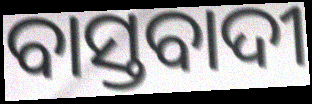
ବାସ୍ତବାଦୀ